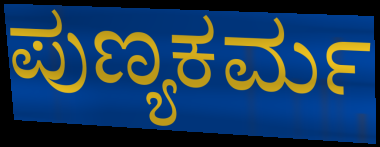
ಪುಣ್ಯಕರ್ಮ